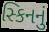
સ્કિનનું